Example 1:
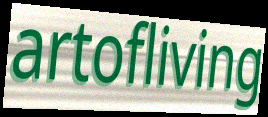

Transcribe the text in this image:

artofliving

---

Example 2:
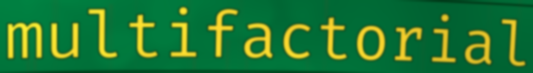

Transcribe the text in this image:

multifactorial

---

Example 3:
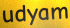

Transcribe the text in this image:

udyam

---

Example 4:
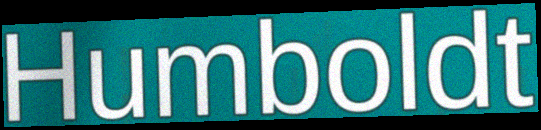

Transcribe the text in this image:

Humboldt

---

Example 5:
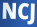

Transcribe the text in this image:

NCJ